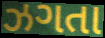
ઝગતા